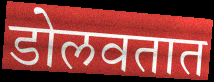
डोलवतात